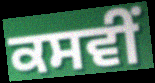
ਕਸਵੀਂ